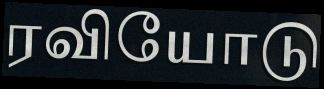
ரவியோடு